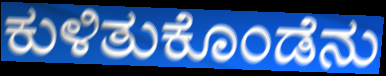
ಕುಳಿತುಕೊಂಡೆನು